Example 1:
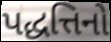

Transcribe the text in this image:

પદ્ધત્તિનો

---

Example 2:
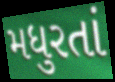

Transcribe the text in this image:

મધુરતાં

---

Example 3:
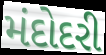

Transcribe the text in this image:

મંદોદરી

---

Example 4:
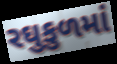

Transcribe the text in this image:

રઘુકુળમાં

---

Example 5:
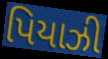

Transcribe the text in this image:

પિયાઝી